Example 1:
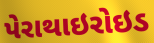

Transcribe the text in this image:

પેરાથાઇરોઇડ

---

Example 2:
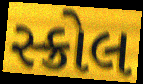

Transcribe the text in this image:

સ્ક્રોલ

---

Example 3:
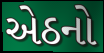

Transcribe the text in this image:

એઠનો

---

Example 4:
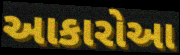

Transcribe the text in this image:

આકારોઆ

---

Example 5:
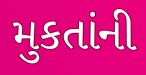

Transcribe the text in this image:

મુકતાંની